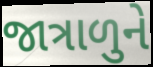
જાત્રાળુને